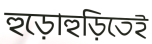
হুড়োহুড়িতেই